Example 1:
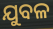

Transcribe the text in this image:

ଯୁବଳ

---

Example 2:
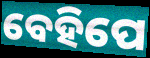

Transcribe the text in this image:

ବେହିପେ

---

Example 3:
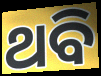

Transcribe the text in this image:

ଥବି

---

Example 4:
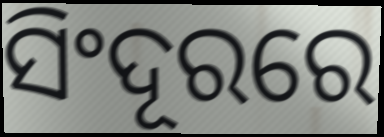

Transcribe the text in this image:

ସିଂଦୂରରେ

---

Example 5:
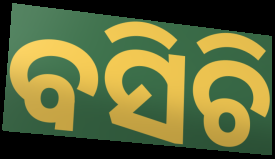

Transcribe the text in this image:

ବସିଚି